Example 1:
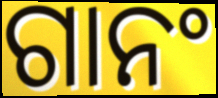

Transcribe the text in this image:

ଗାନଂ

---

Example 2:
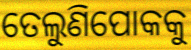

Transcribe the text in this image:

ତେଲୁଣିପୋକକୁ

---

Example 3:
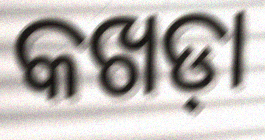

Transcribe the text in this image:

କଖଡ଼ା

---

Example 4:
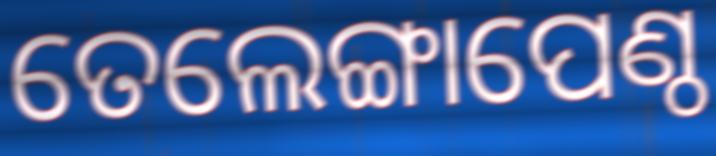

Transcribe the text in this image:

ତେଲେଙ୍ଗାପେଣ୍ଠ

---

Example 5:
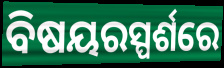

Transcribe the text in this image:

ବିଷୟରସ୍ପର୍ଶରେ